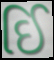
ઈિ